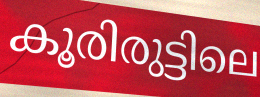
കൂരിരുട്ടിലെ